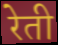
रेती